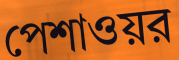
পেশাওয়র